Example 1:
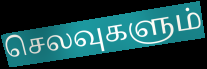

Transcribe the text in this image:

செலவுகளும்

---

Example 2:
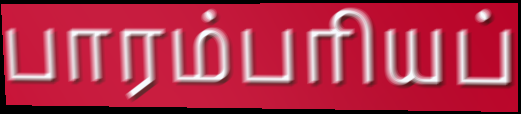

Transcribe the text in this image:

பாரம்பரியப்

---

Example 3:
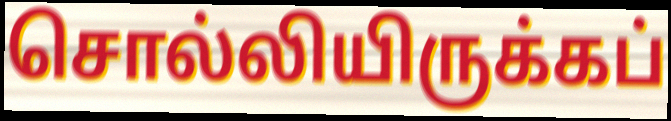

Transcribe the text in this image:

சொல்லியிருக்கப்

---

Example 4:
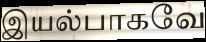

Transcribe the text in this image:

இயல்பாகவே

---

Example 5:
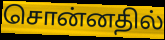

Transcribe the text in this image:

சொன்னதில்